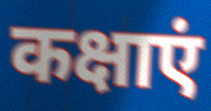
कक्षाएं